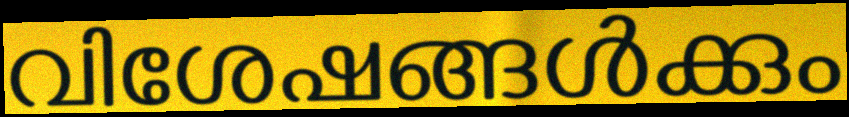
വിശേഷങ്ങൾക്കും